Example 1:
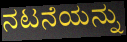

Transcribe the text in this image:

ನಟನೆಯನ್ನು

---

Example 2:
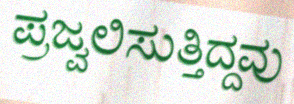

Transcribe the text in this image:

ಪ್ರಜ್ವಲಿಸುತ್ತಿದ್ದವು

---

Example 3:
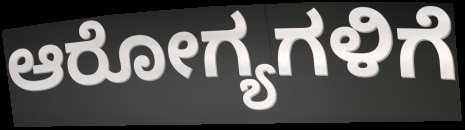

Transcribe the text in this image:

ಆರೋಗ್ಯಗಳಿಗೆ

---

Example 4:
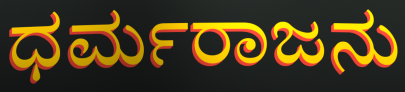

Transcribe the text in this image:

ಧರ್ಮರಾಜನು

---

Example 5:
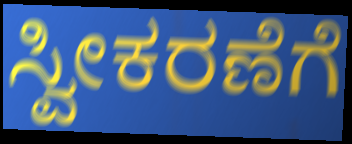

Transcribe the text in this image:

ಸ್ವೀಕರಣೆಗೆ